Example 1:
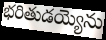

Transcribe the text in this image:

భరితుడయ్యెను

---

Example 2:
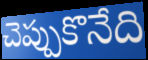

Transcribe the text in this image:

చెప్పుకొనేది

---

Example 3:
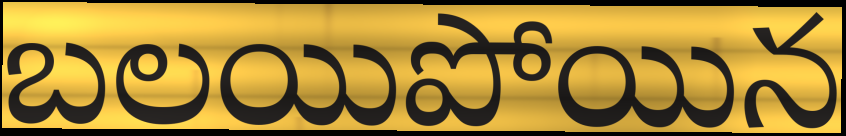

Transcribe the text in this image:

బలయిపోయిన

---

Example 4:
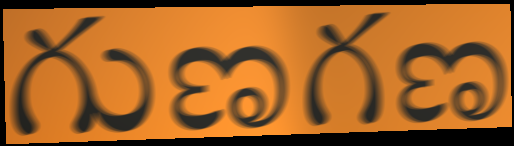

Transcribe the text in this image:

గుణగణ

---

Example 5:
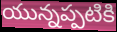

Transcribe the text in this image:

యున్నప్పటికి